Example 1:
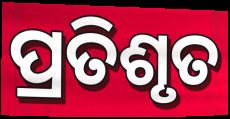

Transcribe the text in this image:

ପ୍ରତିଶୃତ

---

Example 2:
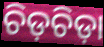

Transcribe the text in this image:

ଚିଡ଼ଚିଡ଼ା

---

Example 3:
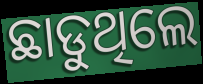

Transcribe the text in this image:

ଛାଡୁଥିଲେ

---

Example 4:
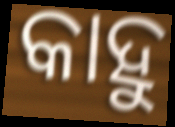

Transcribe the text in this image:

କାହୁ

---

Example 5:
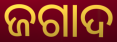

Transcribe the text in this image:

ଜଗାଦ